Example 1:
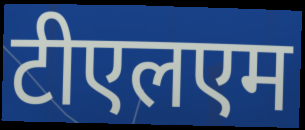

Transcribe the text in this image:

टीएलएम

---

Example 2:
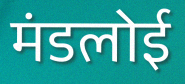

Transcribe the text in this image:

मंडलोई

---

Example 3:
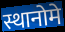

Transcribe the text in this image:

स्थानोमे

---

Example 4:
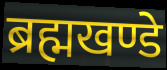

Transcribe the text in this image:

ब्रह्मखण्डे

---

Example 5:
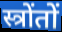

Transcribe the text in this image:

स्त्रोंतों